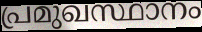
പ്രമുഖസ്ഥാനം